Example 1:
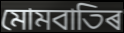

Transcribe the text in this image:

মোমবাতিৰ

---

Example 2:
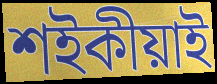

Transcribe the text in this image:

শইকীয়াই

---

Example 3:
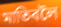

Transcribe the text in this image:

মাতিবলৈ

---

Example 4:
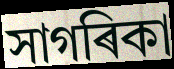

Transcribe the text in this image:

সাগৰিকা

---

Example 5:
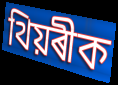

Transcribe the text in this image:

থিয়ৰীক